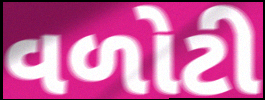
વળોટી